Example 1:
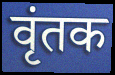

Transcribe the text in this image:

वृंतक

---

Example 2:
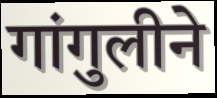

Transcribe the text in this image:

गांगुलीने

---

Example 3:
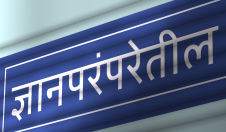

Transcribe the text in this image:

ज्ञानपरंपरेतील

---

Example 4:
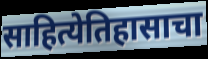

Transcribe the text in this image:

साहित्येतिहासाचा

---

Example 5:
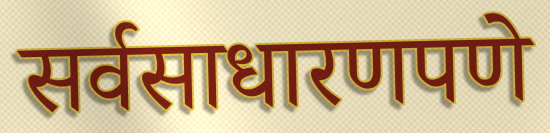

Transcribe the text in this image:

सर्वसाधारणपणे